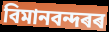
বিমানবন্দৰৰ